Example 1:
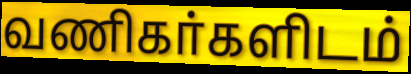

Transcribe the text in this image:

வணிகர்களிடம்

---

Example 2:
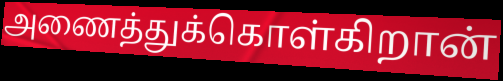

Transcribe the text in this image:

அணைத்துக்கொள்கிறான்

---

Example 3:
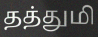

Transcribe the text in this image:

தத்துமி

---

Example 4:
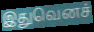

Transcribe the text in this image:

இதுவெனச்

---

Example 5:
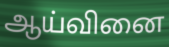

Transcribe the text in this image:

ஆய்வினை